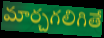
మార్చగలిగితే